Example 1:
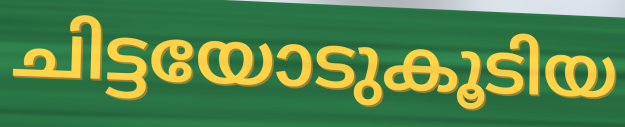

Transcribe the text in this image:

ചിട്ടയോടുകൂടിയ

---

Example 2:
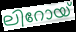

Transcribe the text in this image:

ലിറോയ്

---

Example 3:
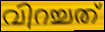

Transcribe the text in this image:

വിറച്ചത്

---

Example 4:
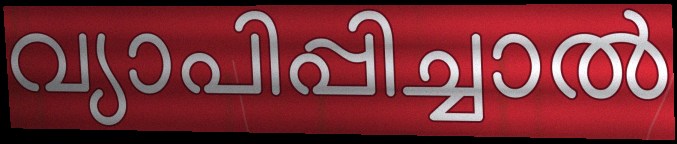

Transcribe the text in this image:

വ്യാപിപ്പിച്ചാൽ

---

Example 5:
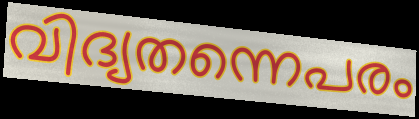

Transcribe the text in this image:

വിദ്യതന്നെപരം